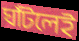
ঘাঁটলেই